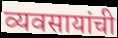
व्यवसायांची